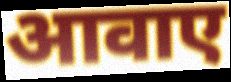
आवाए